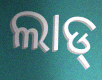
ଲାଡ୍